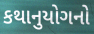
કથાનુયોગનો